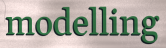
modelling